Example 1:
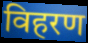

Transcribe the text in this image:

विहरण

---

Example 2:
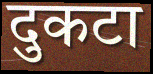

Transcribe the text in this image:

दुकटा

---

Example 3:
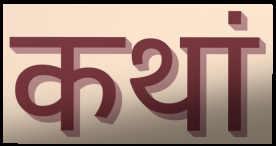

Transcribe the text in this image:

कथां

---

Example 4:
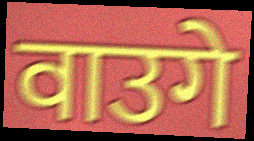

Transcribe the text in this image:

वाउगे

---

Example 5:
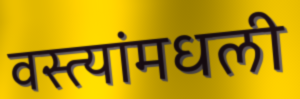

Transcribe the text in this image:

वस्त्यांमधली